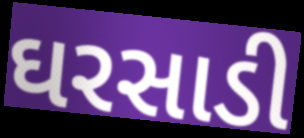
ઘરસાડી